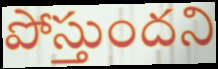
పోస్తుందని